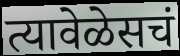
त्यावेळेसचं